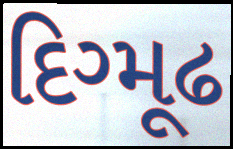
દિગ્મૂઢ